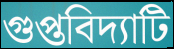
গুপ্তবিদ্যাটি